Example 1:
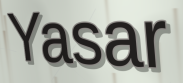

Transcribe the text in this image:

Yasar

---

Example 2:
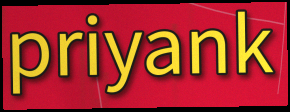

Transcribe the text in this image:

priyank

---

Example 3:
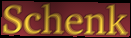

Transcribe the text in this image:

Schenk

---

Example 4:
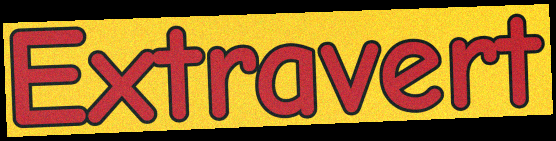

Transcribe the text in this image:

Extravert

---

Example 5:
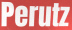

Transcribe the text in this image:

Perutz